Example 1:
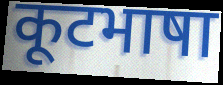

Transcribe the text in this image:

कूटभाषा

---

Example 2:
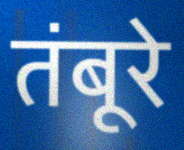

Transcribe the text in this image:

तंबूरे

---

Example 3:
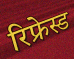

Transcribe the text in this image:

रिफ्रेस्ड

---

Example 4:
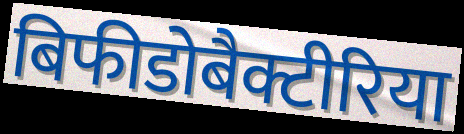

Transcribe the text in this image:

बिफीडोबैक्टीरिया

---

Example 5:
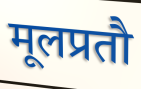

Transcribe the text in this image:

मूलप्रतौ